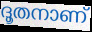
ദൂതനാണ്